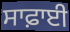
ਸਾਫ਼ਾਈ